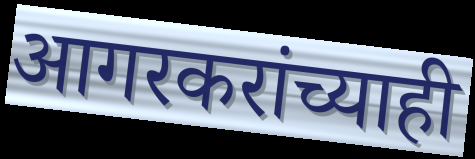
आगरकरांच्याही